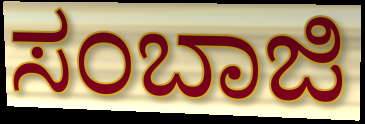
ಸಂಬಾಜಿ